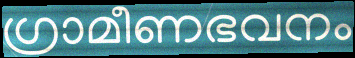
ഗ്രാമീണഭവനം